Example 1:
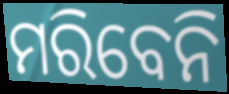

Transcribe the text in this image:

ମରିବେନି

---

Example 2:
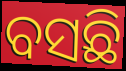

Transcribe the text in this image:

ବସଛି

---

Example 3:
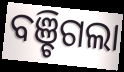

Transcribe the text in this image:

ବଞ୍ଚିଗଲା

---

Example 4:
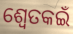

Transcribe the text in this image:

ଶ୍ୱେତକଇଁ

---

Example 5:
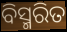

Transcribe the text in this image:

ବିସ୍ମରିତ